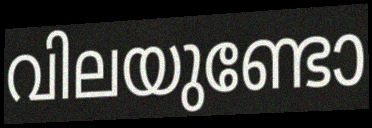
വിലയുണ്ടോ